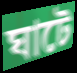
ঘাটে